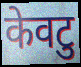
केवटु